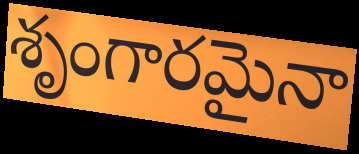
శృంగారమైనా